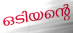
ഒടിയന്റെ